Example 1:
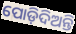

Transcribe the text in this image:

ପୋଡ଼ିଦିଅନ୍ତି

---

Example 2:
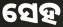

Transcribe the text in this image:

ସେହ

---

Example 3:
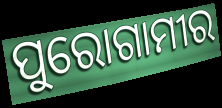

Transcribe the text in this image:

ପୁରୋଗାମୀର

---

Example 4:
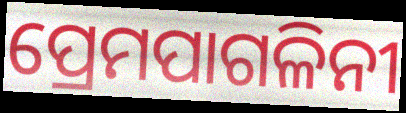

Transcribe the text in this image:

ପ୍ରେମପାଗଳିନୀ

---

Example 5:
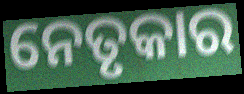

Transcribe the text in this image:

ନେତୃକାର